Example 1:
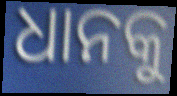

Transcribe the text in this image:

ଧାନକୁ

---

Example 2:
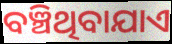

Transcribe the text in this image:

ବଞ୍ଚିଥିବାଯାଏ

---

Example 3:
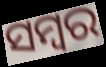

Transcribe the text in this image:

ସମ୍ବର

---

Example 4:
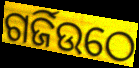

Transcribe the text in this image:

ଗର୍ଜିଉଠେ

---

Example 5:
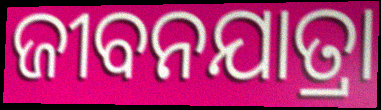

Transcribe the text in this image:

ଜୀବନଯାତ୍ରା